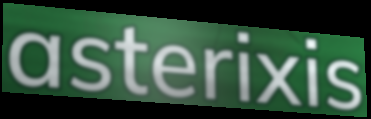
asterixis